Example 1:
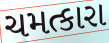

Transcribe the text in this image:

ચમત્કારા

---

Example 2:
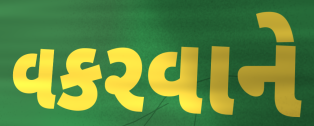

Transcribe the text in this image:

વકરવાને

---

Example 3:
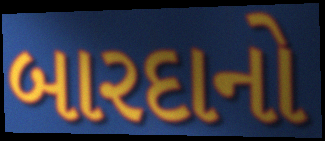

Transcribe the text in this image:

બારદાનો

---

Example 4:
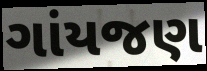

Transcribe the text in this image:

ગાંયજણ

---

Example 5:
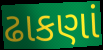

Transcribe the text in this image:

ઢાકણાં